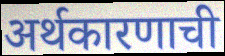
अर्थकारणाची